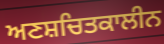
ਅਣਸ਼ਚਿਤਕਾਲੀਨ